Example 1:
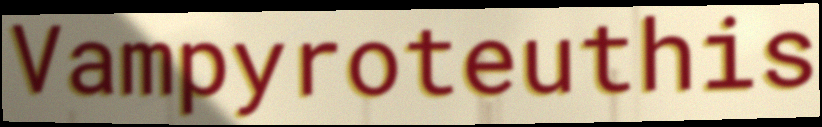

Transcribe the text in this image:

Vampyroteuthis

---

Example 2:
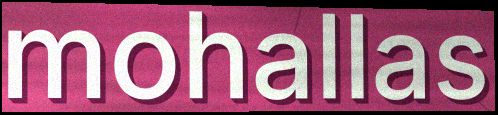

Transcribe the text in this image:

mohallas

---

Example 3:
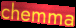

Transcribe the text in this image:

chemma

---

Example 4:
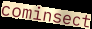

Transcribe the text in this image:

cominsect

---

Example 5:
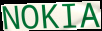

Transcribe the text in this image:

NOKIA